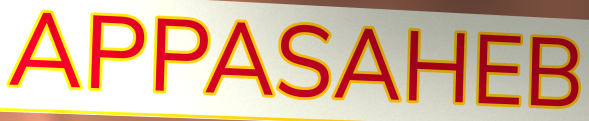
APPASAHEB